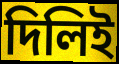
দিলিই